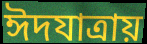
ঈদযাত্রায়